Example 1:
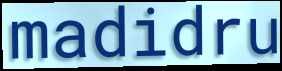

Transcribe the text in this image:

madidru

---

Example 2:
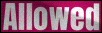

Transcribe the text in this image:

Allowed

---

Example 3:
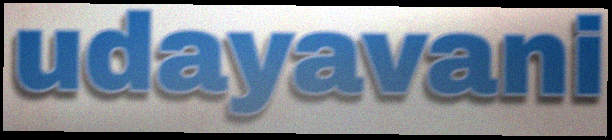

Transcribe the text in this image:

udayavani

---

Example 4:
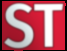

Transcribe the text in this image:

ST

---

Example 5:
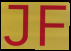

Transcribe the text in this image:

JF